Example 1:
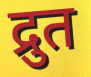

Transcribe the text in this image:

द्रुत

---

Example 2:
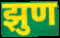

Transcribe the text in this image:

झुण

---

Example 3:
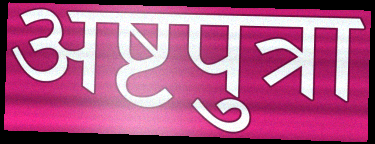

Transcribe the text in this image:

अष्टपुत्रा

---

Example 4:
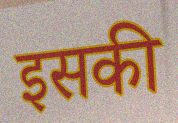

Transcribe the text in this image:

इसकी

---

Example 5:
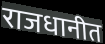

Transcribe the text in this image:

राजधानीत